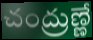
చంద్రుణ్ణే